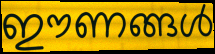
ഈണങ്ങൾ